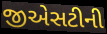
જીએસટીની